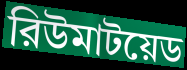
রিউমাটয়েড